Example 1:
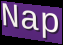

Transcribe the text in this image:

Nap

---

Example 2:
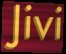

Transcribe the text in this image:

Jivi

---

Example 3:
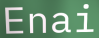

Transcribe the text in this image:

Enai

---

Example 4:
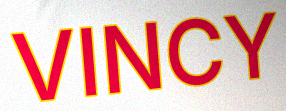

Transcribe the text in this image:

VINCY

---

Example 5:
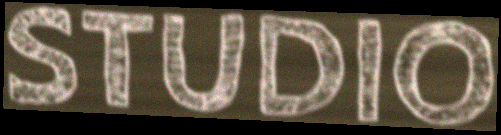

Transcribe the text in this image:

STUDIO